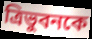
ত্রিভুবনকে